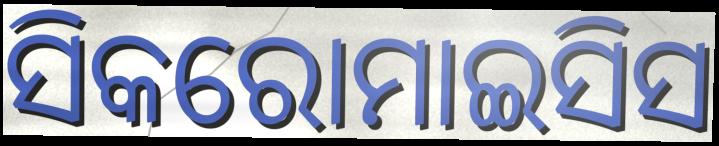
ସିକରୋମାଇସିସ